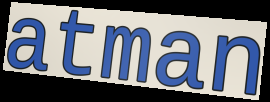
atman